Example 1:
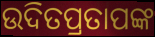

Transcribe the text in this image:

ଉଦିତପ୍ରତାପଙ୍କ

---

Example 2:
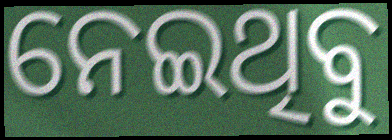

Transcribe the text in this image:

ନେଇଥିବୁ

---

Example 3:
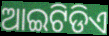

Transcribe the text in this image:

ଆଇଟିଡିଏ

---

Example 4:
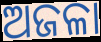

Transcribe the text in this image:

ଅଜଳା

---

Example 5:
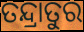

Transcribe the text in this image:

ତନ୍ଦ୍ରାତୁର